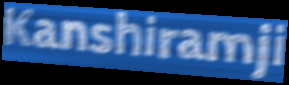
Kanshiramji